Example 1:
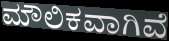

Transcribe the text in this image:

ಮೌಲಿಕವಾಗಿವೆ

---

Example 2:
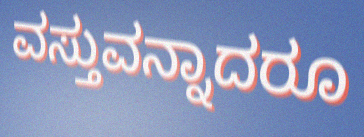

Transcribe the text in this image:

ವಸ್ತುವನ್ನಾದರೂ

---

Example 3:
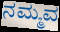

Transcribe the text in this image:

ನಮ್ಮವ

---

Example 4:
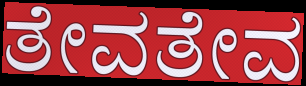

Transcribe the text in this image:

ತೇವತೇವ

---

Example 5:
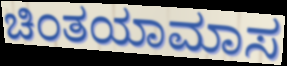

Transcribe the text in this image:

ಚಿಂತಯಾಮಾಸ